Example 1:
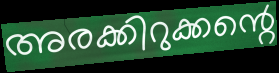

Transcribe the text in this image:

അരക്കിറുക്കന്റെ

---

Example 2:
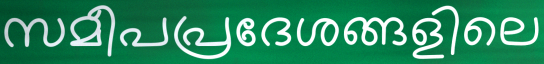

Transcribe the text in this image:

സമീപപ്രദേശങ്ങളിലെ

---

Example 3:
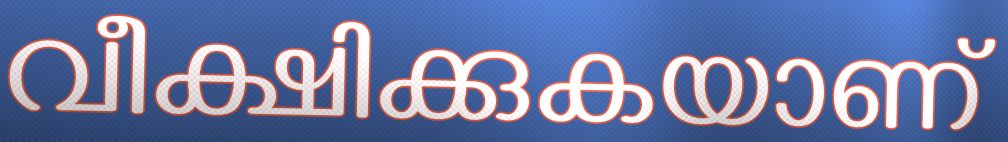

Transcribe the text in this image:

വീക്ഷിക്കുകയാണ്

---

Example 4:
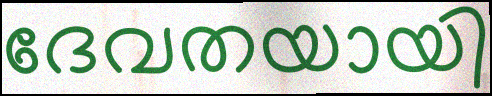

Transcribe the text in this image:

ദേവതയായി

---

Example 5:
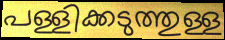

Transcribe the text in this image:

പള്ളിക്കടുത്തുള്ള